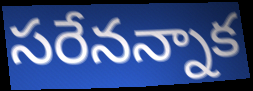
సరేనన్నాక